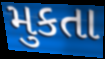
મુકતા